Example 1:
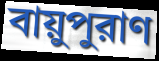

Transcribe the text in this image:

বায়ুপুরাণ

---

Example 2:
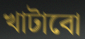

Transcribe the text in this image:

খাটাবো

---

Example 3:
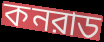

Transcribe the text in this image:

কনরাড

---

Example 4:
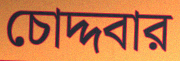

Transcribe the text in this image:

চোদ্দবার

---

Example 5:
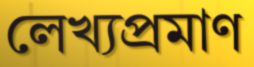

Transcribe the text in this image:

লেখ্যপ্রমাণ